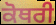
ਕੋਥਰੀ